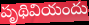
పృథివియందు